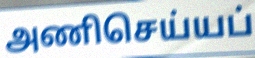
அணிசெய்யப்